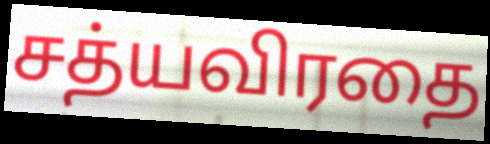
சத்யவிரதை